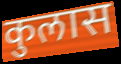
कुलास